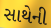
સાથેની